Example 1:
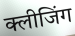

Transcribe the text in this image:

क्‍लीजिंग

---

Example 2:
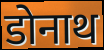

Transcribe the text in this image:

डोनाथ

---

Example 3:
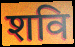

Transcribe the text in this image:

शवि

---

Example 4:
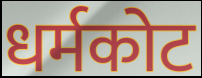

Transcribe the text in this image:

धर्मकोट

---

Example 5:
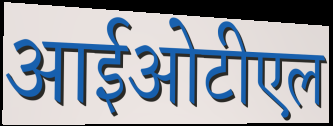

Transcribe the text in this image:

आईओटीएल